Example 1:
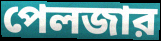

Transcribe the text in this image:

পেলজার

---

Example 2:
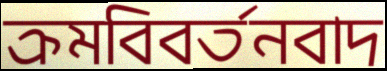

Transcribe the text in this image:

ক্রমবিবর্তনবাদ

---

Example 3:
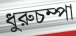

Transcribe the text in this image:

ধুরুচম্পা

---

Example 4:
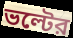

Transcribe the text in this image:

ভল্টের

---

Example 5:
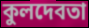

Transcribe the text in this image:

কুলদেবতা